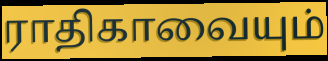
ராதிகாவையும்